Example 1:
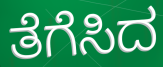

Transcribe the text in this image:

ತೆಗೆಸಿದ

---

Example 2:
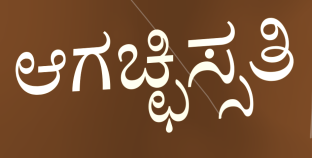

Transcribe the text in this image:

ಆಗಚ್ಛಿಸ್ಸತಿ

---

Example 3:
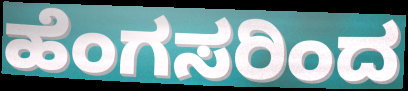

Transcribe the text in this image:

ಹೆಂಗಸರಿಂದ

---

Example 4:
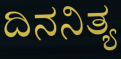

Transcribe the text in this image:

ದಿನನಿತ್ಯ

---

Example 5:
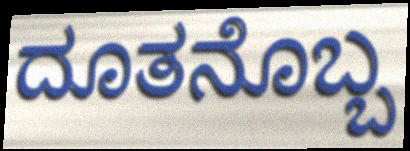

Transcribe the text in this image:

ದೂತನೊಬ್ಬ